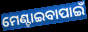
ମେଣ୍ଟାଇବାପାଇଁ